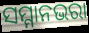
ସମ୍ମାନଭରା